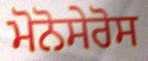
ਮੋਨੋਸੇਰੋਸ